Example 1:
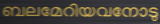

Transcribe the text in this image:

ബലമേറിയവനോടു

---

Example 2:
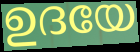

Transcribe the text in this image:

ഉദയേ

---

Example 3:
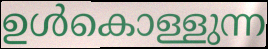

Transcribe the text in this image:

ഉൾകൊള്ളുന്ന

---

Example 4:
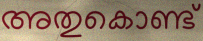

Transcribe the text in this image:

അതുകൊണ്ട്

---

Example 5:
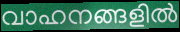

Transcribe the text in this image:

വാഹനങ്ങളിൽ